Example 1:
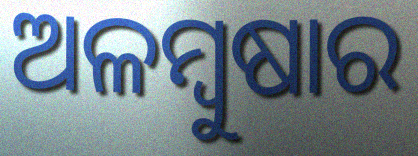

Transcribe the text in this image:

ଅଳମ୍ବୁଷାର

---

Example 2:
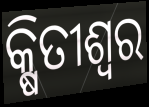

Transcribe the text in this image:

କ୍ଷିତୀଶ୍ୱର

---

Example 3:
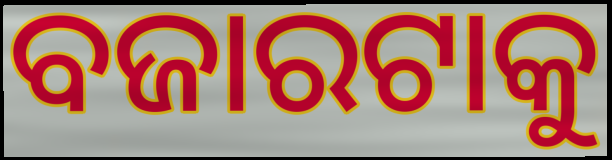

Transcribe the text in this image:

ବଜାରଟାକୁ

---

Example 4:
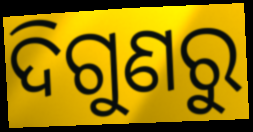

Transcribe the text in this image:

ଦିଗୁଣରୁ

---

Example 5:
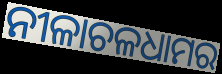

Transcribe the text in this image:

ନୀଳାଚଳଧାମର